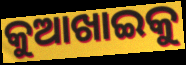
କୁଆଖାଇକୁ